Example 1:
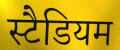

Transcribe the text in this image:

स्टैडियम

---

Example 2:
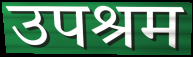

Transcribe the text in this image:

उपश्रम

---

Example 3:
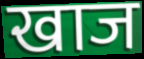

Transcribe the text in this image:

खाज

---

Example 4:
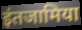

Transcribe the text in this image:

इंतजामिया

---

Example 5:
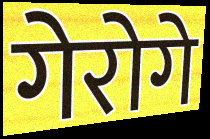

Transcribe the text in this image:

गेरोगे